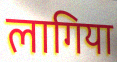
लागिया